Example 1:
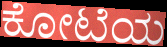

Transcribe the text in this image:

ಕೋಟೆಯ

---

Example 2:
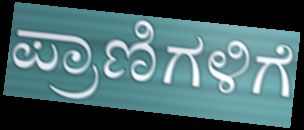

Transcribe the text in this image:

ಪ್ರಾಣಿಗಳಿಗೆ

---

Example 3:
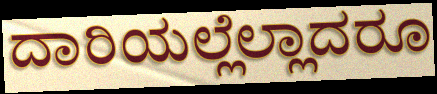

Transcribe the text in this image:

ದಾರಿಯಲ್ಲೆಲ್ಲಾದರೂ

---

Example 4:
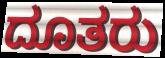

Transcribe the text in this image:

ದೂತರು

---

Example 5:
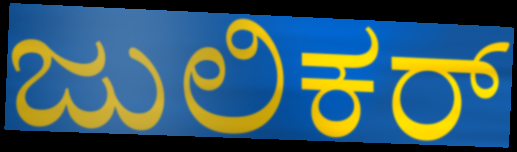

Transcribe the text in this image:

ಜುಲಿಕರ್